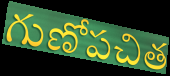
గుణోపచిత